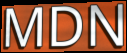
MDN